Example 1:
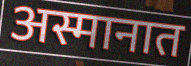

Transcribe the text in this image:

अस्मानात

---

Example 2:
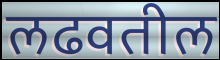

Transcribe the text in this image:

लढवतील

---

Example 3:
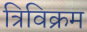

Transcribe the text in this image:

त्रिविक्रम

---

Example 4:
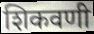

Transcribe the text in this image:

शिकवणी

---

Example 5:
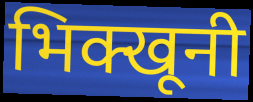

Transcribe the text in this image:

भिक्खूनी